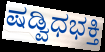
ಷಡ್ವಿಧಭಕ್ತಿ